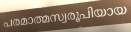
പരമാത്മസ്വരൂപിയായ